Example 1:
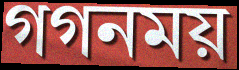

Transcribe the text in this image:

গগনময়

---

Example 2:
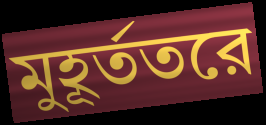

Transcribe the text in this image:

মুহূর্ততরে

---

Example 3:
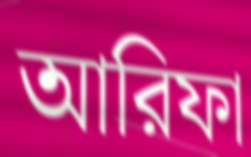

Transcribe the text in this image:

আরিফা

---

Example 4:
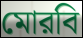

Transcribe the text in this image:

মোরবি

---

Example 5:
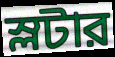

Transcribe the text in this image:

স্লটার